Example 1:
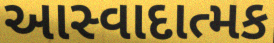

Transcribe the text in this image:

આસ્વાદાત્મક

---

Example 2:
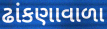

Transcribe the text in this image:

ઢાંકણાવાળા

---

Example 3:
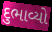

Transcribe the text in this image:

દુભાવ્યો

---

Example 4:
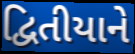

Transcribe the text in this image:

દ્વિતીયાને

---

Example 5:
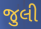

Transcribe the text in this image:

જુલી